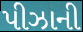
પીઝાની